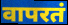
वापरतं